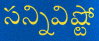
సన్నివిష్టో